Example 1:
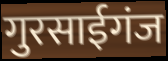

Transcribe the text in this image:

गुरसाईगंज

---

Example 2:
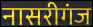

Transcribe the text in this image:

नासरीगंज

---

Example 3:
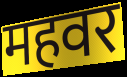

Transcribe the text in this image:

महवर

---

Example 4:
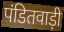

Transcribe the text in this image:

पंडितवाड़ी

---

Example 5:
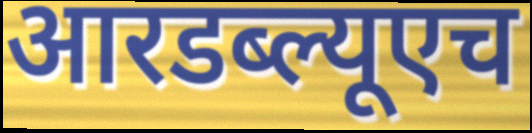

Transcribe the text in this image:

आरडब्ल्यूएच